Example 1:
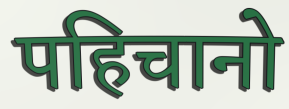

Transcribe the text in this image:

पहिचानो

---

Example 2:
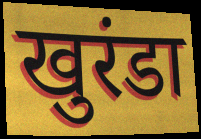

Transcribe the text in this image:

खुरंडा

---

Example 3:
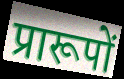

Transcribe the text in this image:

प्रारूपों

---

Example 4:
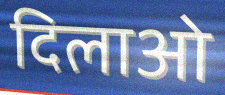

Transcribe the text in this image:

दिलाओ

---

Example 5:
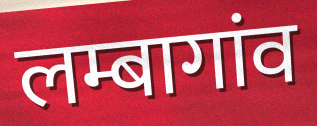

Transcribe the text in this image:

लम्बागांव